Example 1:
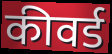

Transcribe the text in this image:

कीवर्ड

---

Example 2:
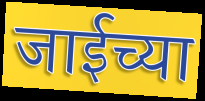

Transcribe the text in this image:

जाईच्या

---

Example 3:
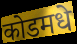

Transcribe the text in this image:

कोडमधे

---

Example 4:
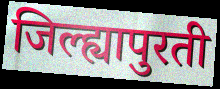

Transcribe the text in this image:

जिल्ह्यापुरती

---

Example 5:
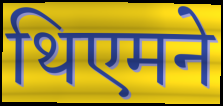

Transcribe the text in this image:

थिएमने